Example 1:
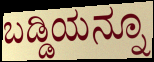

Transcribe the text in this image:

ಬಡ್ಡಿಯನ್ನೂ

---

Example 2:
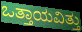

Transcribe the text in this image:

ಒತ್ತಾಯವಿತ್ತು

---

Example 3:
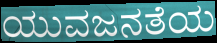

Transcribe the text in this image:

ಯುವಜನತೆಯ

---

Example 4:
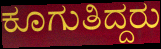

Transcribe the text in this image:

ಕೂಗುತಿದ್ದರು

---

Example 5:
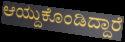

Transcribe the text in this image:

ಆಯ್ದುಕೊಂಡಿದ್ದಾರೆ